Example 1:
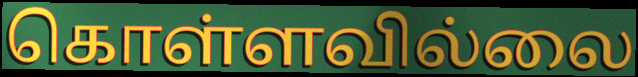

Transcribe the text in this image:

கொள்ளவில்லை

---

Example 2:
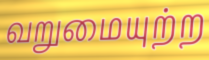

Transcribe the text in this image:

வறுமையுற்ற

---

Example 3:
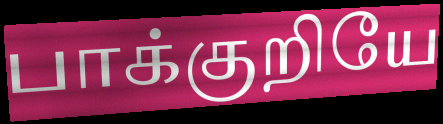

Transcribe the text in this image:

பாக்குறியே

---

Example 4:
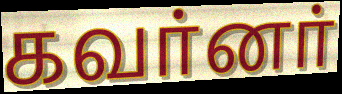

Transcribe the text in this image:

கவர்னர்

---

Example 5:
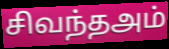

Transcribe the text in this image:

சிவந்தஅம்